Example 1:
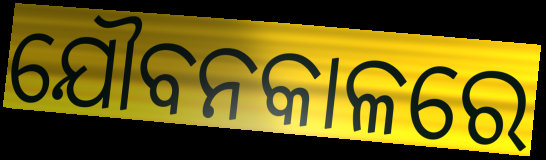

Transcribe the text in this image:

ଯୌବନକାଳରେ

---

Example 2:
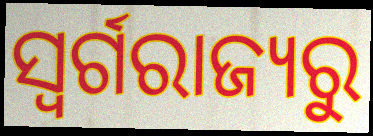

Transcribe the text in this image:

ସ୍ବର୍ଗରାଜ୍ୟରୁ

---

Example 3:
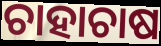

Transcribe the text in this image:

ଚାହାଚାଷ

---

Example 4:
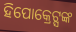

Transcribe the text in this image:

ହିପୋକ୍ରେଟ୍ସଙ୍କ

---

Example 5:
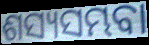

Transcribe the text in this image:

ଶସ୍ୟସମ୍ଭବା